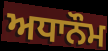
ਅਧਾਨੌਮ